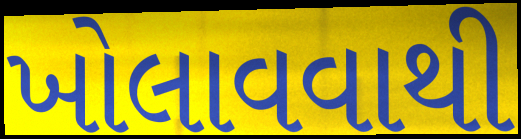
ખોલાવવાથી